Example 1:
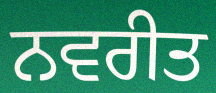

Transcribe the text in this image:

ਨਵਰੀਤ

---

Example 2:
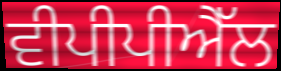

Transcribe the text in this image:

ਵੀਪੀਪੀਐੱਲ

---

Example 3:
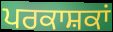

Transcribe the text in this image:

ਪਰਕਾਸ਼ਕਾਂ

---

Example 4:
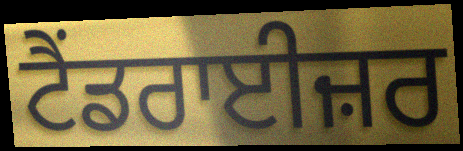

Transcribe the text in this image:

ਟੈਂਡਰਾਈਜ਼ਰ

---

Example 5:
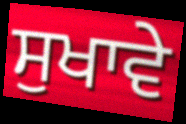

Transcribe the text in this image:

ਸੁਖਾਵੇ